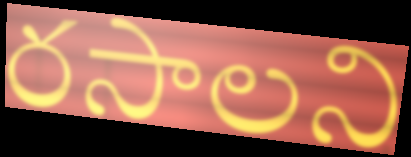
రసాలని